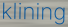
klining